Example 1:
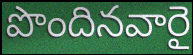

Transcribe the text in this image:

పొందినవారై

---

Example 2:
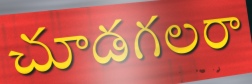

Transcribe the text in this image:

చూడగలరా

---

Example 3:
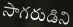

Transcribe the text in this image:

సాగరుడిని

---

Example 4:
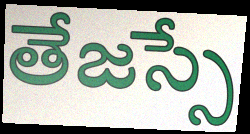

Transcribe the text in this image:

తేజస్సే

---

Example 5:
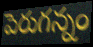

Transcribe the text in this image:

పెరుగన్నం